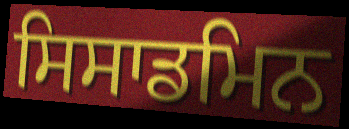
ਸਿਸਾਡਮਿਨ